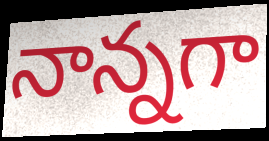
నాన్నగా